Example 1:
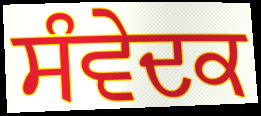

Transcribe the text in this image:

ਸੰਵੇਦਕ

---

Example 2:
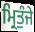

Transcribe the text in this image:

ਮ੍ਰਿਤੁੰਜੇ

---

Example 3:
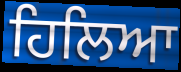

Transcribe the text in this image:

ਹਿਲਿਆ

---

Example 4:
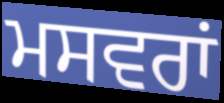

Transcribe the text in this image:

ਮਸਵਰਾਂ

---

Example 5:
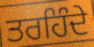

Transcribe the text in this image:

ਤਰਹਿੰਦੇ